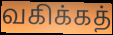
வகிக்கத்